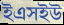
ইএসইউ